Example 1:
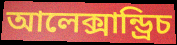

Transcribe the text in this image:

আলেক্সান্ড্রিচ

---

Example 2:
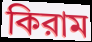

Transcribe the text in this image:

কিরাম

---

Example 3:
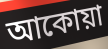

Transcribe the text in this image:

আকোয়া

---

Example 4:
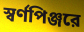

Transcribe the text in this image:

স্বর্ণপিঞ্জরে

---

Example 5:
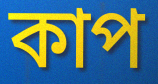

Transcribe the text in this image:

কাপ